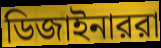
ডিজাইনাররা